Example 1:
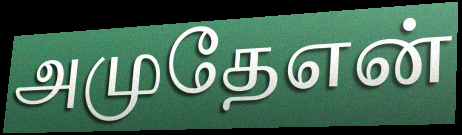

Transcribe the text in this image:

அமுதேஎன்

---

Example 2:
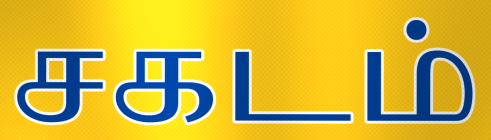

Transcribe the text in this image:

சகடம்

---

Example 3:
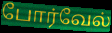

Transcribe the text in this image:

போர்வேல்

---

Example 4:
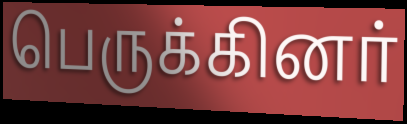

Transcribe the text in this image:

பெருக்கினர்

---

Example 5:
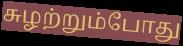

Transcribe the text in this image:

சுழற்றும்போது